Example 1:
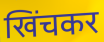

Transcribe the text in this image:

खिंचकर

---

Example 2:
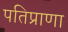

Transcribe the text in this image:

पतिप्राणा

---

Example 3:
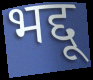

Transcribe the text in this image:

भद्दू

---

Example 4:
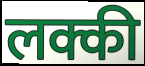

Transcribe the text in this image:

लक्की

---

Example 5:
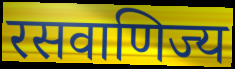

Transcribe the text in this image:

रसवाणिज्य